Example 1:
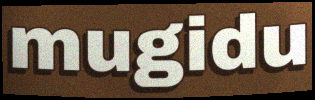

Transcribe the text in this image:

mugidu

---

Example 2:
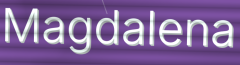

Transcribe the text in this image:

Magdalena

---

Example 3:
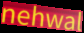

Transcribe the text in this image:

nehwal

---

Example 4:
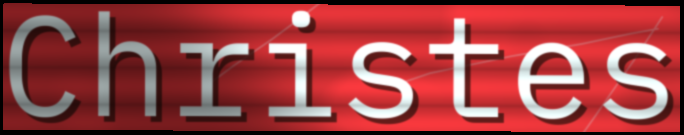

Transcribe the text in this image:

Christes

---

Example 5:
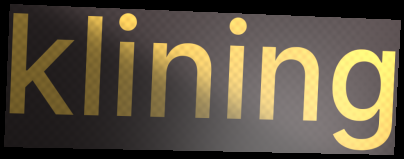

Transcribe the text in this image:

klining